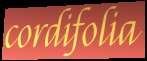
cordifolia